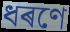
ধৰণে